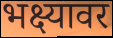
भक्ष्यावर